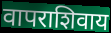
वापराशिवाय